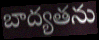
బాద్యతను